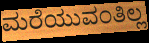
ಮರೆಯುವಂತಿಲ್ಲ